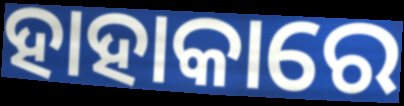
ହାହାକାରେ